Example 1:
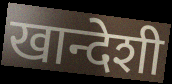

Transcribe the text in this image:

खान्देशी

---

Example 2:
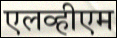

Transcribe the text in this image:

एलव्हीएम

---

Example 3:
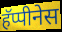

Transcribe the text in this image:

हॅप्पीनेस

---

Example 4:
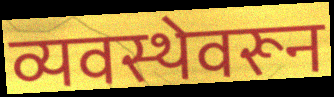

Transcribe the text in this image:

व्यवस्थेवरून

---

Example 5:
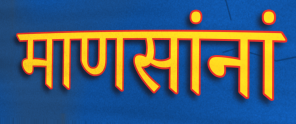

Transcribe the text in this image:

माणसांनां